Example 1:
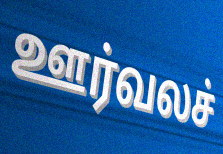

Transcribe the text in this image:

ஊர்வலச்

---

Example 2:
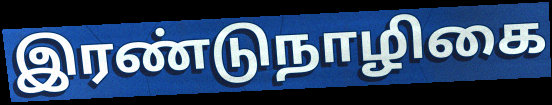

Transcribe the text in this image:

இரண்டுநாழிகை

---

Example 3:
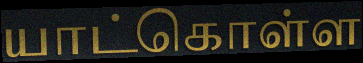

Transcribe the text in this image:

யாட்கொள்ள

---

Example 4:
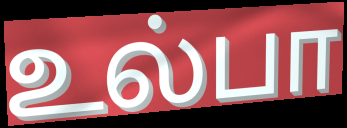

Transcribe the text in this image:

உல்பா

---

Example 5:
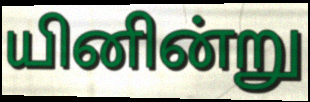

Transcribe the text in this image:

யினின்று